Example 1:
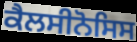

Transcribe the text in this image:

ਕੈਲਸੀਨੋਸਿਸ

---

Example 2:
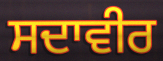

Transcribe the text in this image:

ਸਦਾਵੀਰ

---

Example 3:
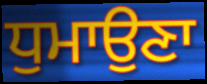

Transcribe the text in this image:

ਧੁਮਾਉਣਾ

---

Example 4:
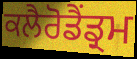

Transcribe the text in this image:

ਕਲੈਰੋਡੈਂਡ੍ਰਮ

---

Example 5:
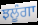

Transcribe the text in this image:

ਝਲੂੰਗਾ